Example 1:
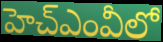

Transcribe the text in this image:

హెచ్ఎంవీలో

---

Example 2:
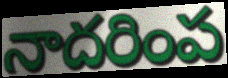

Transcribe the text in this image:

నాదరింప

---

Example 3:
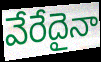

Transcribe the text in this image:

వేరేదైనా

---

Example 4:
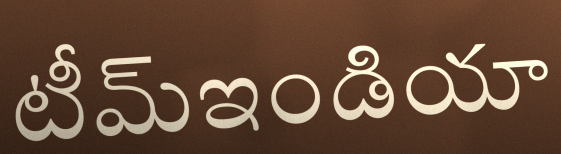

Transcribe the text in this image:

టీమ్ఇండియా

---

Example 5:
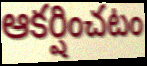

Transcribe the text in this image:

ఆకర్షించటం